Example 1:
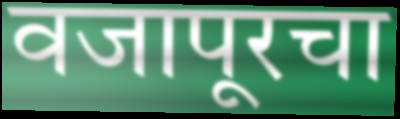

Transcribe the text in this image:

वजापूरचा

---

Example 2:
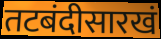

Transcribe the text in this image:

तटबंदीसारखं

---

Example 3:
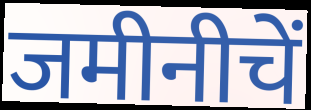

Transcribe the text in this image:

जमीनीचें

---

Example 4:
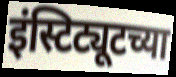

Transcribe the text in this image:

इंस्टिट्यूटच्या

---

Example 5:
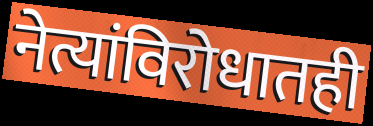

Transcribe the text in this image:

नेत्यांविरोधातही